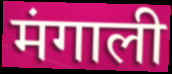
मंगाली